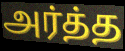
அர்த்த